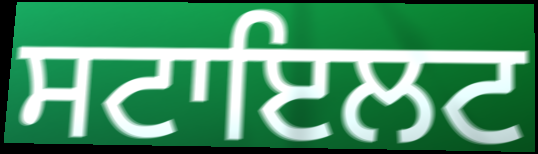
ਸਟਾਇਲਟ